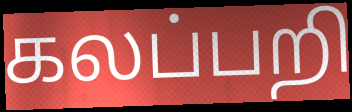
கலப்பறி